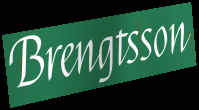
Brengtsson